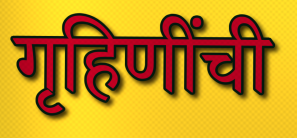
गृहिणींची